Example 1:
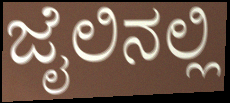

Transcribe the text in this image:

ಜೈಲಿನಲ್ಲಿ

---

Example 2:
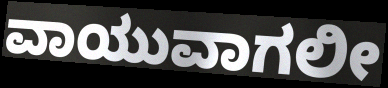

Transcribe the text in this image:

ವಾಯುವಾಗಲೀ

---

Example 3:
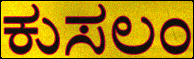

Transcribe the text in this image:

ಕುಸಲಂ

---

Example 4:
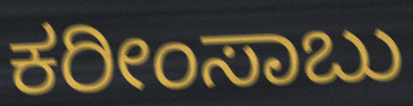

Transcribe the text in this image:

ಕರೀಂಸಾಬು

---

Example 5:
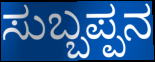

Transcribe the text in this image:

ಸುಬ್ಬಪ್ಪನ